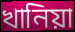
খানিয়া